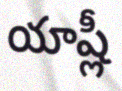
యాష్లీ